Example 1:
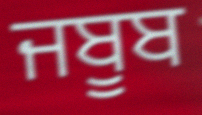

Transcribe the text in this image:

ਜਬੂਬ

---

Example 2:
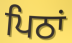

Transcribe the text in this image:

ਪਿਠਾਂ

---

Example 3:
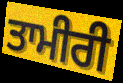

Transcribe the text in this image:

ਤਾਮੀਰੀ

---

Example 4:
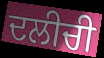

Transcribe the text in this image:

ਦਲੀਚੀ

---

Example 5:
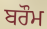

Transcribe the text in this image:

ਬਰੌਮ